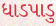
ધાડપાડુ